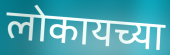
लोकायच्या